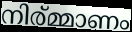
നിര്മ്മാണം